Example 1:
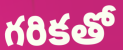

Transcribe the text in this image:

గరికతో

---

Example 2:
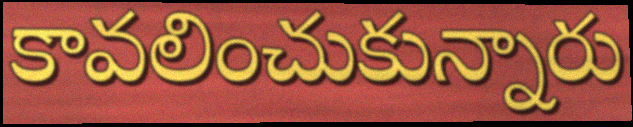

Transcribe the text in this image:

కావలించుకున్నారు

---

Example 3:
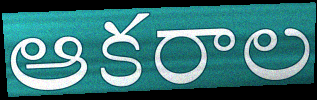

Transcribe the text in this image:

ఆకరాల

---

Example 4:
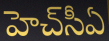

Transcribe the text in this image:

హెచ్‌సీఏ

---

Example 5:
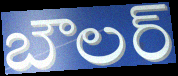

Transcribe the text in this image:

బౌలర్